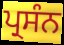
ਪ੍ਰਸੰਨ